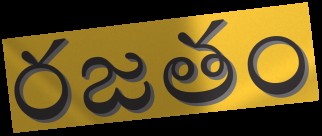
రజతం